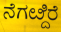
ನೆಗೞ್ದಿರೆ